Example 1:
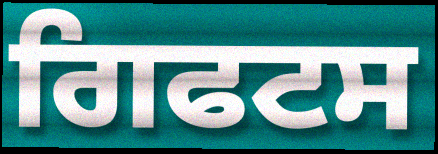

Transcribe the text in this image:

ਗਿਫਟਸ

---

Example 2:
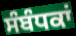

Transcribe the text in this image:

ਸੰਬੰਧਕਾਂ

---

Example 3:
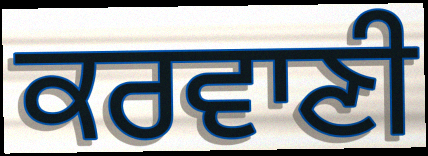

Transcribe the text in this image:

ਕਰਵਾਣੀ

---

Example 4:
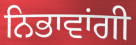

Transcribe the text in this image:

ਨਿਭਾਵਾਂਗੀ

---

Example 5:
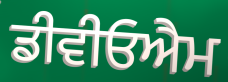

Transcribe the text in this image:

ਡੀਵੀਓਐਮ